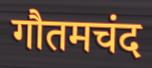
गौतमचंद